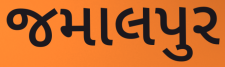
જમાલપુર